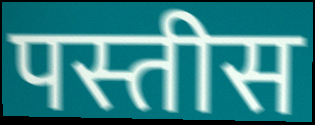
पस्तीस